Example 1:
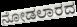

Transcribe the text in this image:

ನೋಡಲಾರದ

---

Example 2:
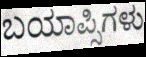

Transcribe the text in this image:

ಬಯಾಪ್ಸಿಗಳು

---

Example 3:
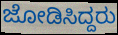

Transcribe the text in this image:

ಜೋಡಿಸಿದ್ದರು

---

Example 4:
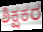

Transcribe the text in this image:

ಶಿಕ್ಷಕರ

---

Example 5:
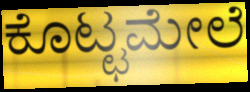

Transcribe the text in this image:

ಕೊಟ್ಟಮೇಲೆ